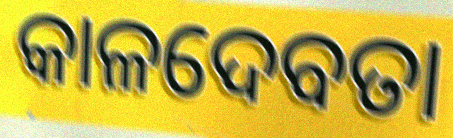
କାଳଦେବତା